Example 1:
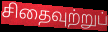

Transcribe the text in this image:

சிதைவுற்றுப்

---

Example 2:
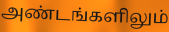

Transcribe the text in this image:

அண்டங்களிலும்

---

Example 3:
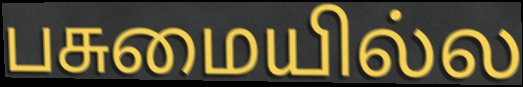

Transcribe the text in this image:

பசுமையில்ல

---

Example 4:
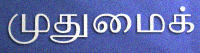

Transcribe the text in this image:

முதுமைக்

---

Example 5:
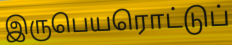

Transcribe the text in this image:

இருபெயரொட்டுப்